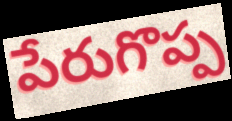
పేరుగొప్ప